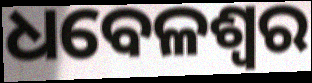
ଧବେଳଶ୍ୱର